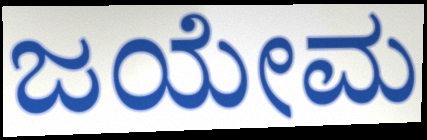
ಜಯೇಮ